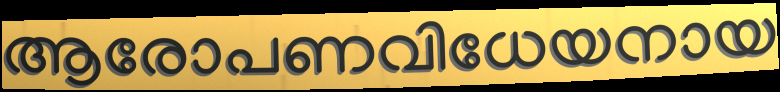
ആരോപണവിധേയനായ